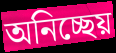
অনিচ্ছেয়